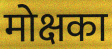
मोक्षका